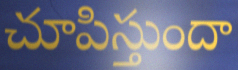
చూపిస్తుందా